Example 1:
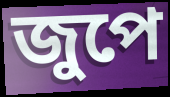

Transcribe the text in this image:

জুপে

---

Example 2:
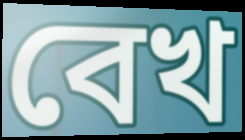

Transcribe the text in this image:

বেখ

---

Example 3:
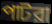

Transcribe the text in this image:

পাটরা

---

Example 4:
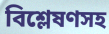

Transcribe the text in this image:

বিশ্লেষণসহ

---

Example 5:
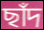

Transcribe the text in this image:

ছাঁদ